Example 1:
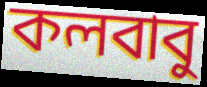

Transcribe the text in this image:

কলবাবু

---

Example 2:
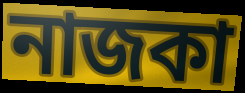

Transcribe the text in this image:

নাজকা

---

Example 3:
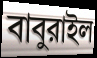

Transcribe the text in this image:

বাবুরাইল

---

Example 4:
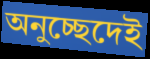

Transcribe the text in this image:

অনুচ্ছেদেই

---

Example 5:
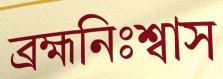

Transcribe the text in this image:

ব্রহ্মনিঃশ্বাস